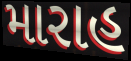
મારાહ